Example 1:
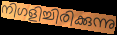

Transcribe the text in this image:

നിഗളിച്ചിരിക്കുന്നു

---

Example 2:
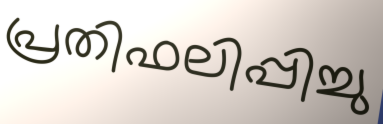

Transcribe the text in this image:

പ്രതിഫലിപ്പിച്ചു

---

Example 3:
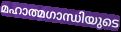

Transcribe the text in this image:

മഹാത്മഗാന്ധിയുടെ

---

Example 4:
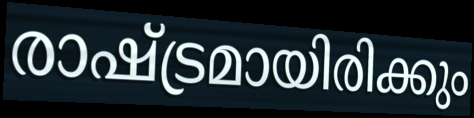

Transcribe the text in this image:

രാഷ്ട്രമായിരിക്കും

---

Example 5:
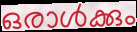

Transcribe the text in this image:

ഒരാൾക്കും